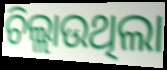
ଚିଲ୍ଲାଉଥିଲା